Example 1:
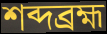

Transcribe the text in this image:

শব্দব্রহ্ম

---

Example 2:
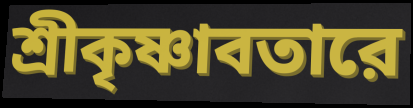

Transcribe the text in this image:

শ্রীকৃষ্ণাবতারে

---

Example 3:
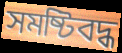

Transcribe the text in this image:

সমষ্টিবদ্ধ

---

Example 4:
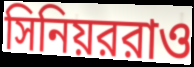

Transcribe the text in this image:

সিনিয়ররাও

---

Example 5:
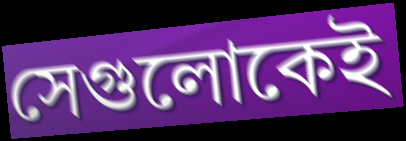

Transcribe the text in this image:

সেগুলোকেই